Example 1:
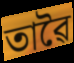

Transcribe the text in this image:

তাৱৈ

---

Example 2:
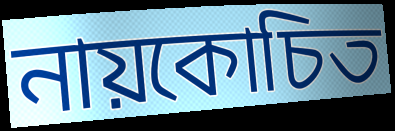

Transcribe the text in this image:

নায়কোচিত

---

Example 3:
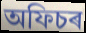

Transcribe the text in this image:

অফিচৰ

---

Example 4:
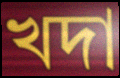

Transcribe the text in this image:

খদা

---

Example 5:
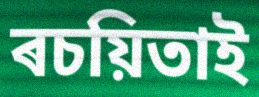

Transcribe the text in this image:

ৰচয়িতাই